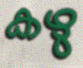
കഴു